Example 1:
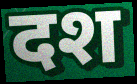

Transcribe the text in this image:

दश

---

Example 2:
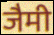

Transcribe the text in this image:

जैमी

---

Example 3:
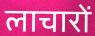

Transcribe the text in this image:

लाचारों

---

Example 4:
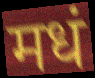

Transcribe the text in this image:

मधं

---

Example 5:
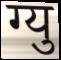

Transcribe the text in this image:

ग्यु